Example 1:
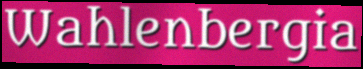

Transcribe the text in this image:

Wahlenbergia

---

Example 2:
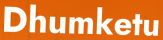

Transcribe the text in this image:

Dhumketu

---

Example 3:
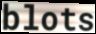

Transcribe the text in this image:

blots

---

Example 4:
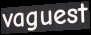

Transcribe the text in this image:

vaguest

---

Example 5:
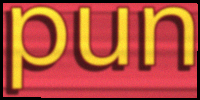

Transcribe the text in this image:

pun